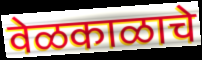
वेळकाळाचे